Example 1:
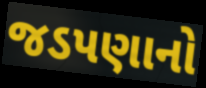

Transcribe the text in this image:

જડપણાનો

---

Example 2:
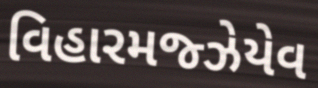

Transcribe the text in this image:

વિહારમજ્ઝેયેવ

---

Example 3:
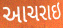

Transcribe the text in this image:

આચરાઇ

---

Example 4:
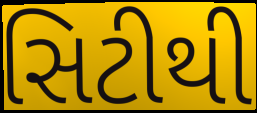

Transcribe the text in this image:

સિટીથી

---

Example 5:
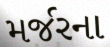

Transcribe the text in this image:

મર્જરના